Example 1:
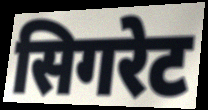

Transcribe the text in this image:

सिगरेट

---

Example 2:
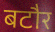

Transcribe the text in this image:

बटौर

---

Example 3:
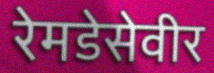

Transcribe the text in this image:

रेमडेसेवीर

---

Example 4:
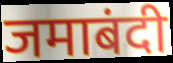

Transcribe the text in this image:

जमाबंदी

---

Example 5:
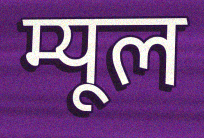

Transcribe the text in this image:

म्यूल